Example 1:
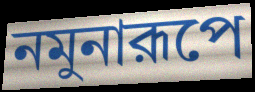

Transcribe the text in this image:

নমুনারূপে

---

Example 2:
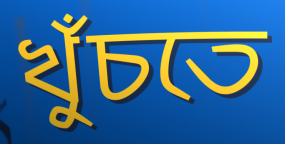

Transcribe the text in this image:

খুঁচতে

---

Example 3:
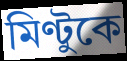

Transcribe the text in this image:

মিণ্টুকে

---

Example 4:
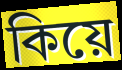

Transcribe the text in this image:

কিয়ে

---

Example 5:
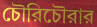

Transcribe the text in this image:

চৌরিচৌরার